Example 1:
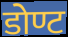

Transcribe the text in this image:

डोण्ट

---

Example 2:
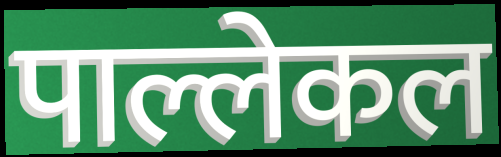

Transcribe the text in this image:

पाल्लेकल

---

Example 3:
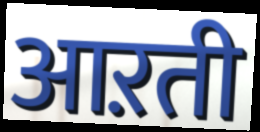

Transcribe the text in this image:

आऱती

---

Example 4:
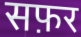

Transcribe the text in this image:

सफ़र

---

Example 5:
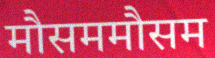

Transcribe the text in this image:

मौसममौसम